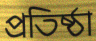
প্রতিষ্ঠা